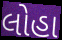
લોહા